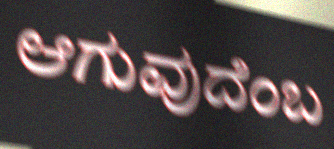
ಆಗುವುದೆಂಬ